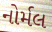
નોર્મલ